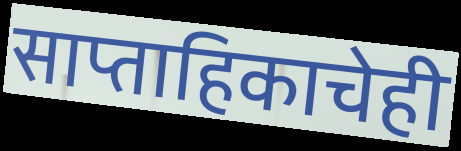
साप्ताहिकाचेही